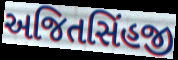
અજિતસિંહજી